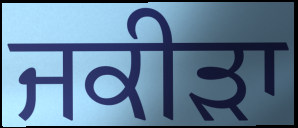
ਜਕੀੜਾ